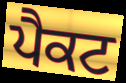
ਪੈਕਟ